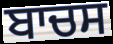
ਬਾਚਸ